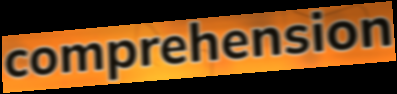
comprehension